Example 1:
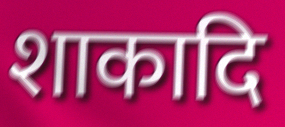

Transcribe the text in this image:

शाकादि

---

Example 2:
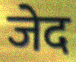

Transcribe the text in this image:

जेद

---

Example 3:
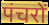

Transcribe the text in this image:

पंचरों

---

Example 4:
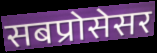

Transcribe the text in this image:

सबप्रोसेसर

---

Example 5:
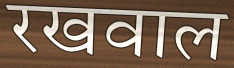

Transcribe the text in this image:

रखवाल